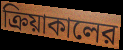
ক্রিয়াকালের